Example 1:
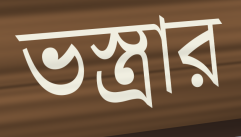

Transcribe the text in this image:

ভস্ত্রার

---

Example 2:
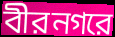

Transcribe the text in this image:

বীরনগরে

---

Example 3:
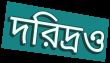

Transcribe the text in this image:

দরিদ্রও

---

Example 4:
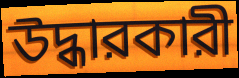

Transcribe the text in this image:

উদ্ধারকারী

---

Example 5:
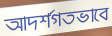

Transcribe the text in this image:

আদর্শগতভাবে